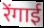
रेंगाई